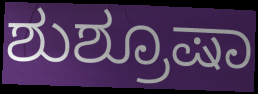
ಶುಶ್ರೂಷಾ